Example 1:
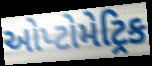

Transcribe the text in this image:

ઓપ્ટોમેટ્રિક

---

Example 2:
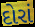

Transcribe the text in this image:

દોરાં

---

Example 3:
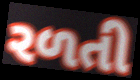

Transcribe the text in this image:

રળતી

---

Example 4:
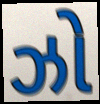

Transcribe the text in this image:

ઝો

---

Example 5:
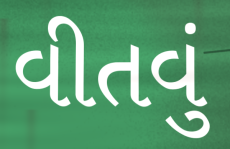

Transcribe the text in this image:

વીતવું